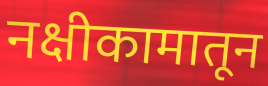
नक्षीकामातून